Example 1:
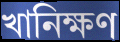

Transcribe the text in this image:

খানিক্ষণ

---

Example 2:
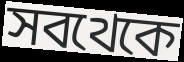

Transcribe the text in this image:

সবথেকে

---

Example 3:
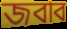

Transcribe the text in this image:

জবাব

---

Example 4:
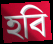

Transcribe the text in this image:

হবি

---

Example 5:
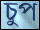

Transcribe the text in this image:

চুপ